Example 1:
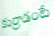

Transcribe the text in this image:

కుర్రాడంటే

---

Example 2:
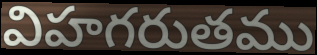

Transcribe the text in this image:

విహగరుతము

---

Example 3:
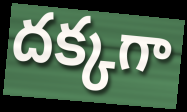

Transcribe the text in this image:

దక్కగా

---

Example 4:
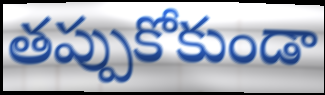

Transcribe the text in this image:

తప్పుకోకుండా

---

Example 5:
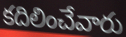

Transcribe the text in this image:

కదిలించేవారు